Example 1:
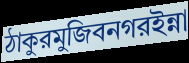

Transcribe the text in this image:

ঠাকুরমুজিবনগরইন্না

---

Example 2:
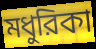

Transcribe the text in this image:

মধুরিকা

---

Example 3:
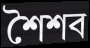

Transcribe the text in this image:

শৈশব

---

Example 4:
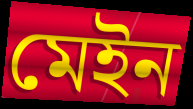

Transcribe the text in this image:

মেইন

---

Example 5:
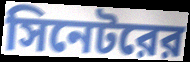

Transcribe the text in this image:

সিনেটরের